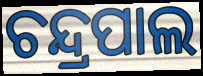
ଚନ୍ଦ୍ରପାଲ